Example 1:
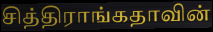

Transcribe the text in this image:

சித்திராங்கதாவின்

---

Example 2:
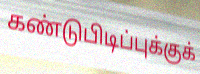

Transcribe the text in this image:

கண்டுபிடிப்புக்குக்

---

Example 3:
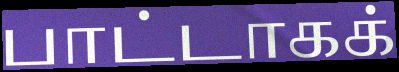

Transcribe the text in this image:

பாட்டாகக்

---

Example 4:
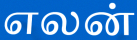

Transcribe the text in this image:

எலன்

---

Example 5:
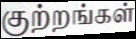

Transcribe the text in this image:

குற்றங்கள்